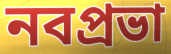
নবপ্রভা